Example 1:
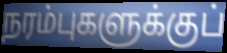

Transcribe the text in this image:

நரம்புகளுக்குப்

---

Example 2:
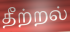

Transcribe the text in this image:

தீற்றல்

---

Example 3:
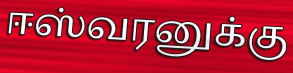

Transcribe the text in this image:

ஈஸ்வரனுக்கு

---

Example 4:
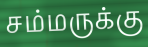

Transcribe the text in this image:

சம்மருக்கு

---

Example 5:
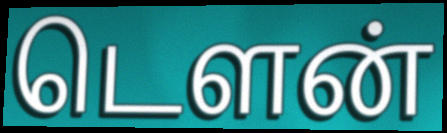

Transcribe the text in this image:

டௌன்